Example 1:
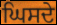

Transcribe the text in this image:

ਘਿਸਦੇ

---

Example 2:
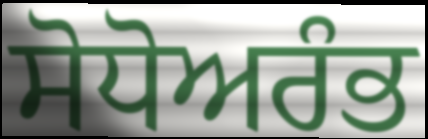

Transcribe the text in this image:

ਸੋਧੋਅਰੰਭ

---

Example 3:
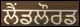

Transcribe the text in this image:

ਲੈਂਡਲੌਰਡ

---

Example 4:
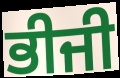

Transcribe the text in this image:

ਭੀਜੀ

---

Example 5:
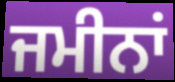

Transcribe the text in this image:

ਜਮੀਨਾਂ